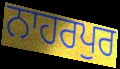
ਨਾਹਰਪੁਰ